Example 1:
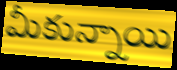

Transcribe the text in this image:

మీకున్నాయి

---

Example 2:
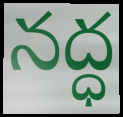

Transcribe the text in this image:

నద్ధ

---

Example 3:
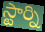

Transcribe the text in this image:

స్టార్ని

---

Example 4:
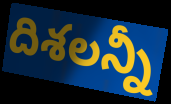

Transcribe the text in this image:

దిశలన్నీ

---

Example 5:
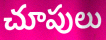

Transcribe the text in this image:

చూపులు